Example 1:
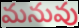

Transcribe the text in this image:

మనువు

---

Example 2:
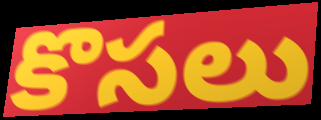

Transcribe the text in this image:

కొసలు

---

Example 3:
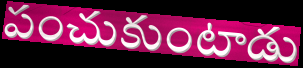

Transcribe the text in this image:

పంచుకుంటాడు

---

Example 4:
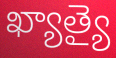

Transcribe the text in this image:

ఖ్యాత్యై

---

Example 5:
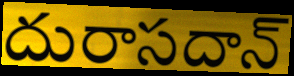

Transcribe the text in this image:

దురాసదాన్